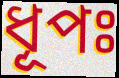
ধূপঃ